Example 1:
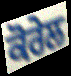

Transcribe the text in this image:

ਕੋਰੇਲ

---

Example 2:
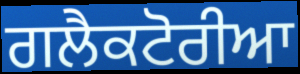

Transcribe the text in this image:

ਗਲੈਕਟੋਰੀਆ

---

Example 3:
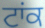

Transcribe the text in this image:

ਟਾਂਕ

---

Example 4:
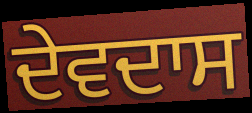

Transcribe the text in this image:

ਦੇਵਦਾਸ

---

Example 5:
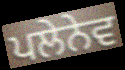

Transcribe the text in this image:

ਪਲੇਨੇਵ